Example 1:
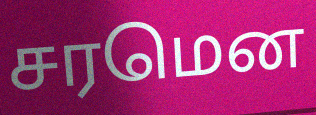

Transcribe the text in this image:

சரமென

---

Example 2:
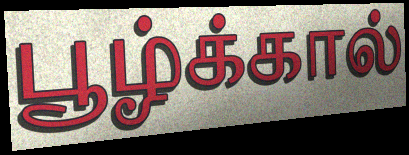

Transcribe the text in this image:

பூழ்க்கால்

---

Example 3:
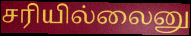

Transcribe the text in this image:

சரியில்லைனு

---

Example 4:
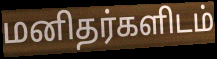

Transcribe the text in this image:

மனிதர்களிடம்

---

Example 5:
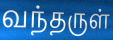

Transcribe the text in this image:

வந்தருள்